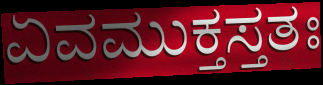
ಏವಮುಕ್ತಸ್ತತಃ